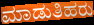
ಮಾಡುತಿಹರು